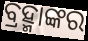
ବ୍ରହ୍ମାଙ୍କର